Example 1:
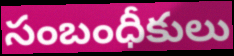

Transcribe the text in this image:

సంబంధీకులు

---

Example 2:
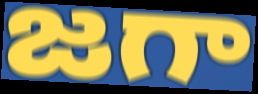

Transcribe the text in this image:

జగా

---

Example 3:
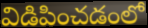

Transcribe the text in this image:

విడిపించడంలో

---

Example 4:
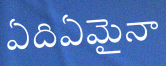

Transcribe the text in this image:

ఏదిఏమైనా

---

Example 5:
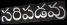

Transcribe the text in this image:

సరిపడవు